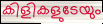
കിളികളുടേയും